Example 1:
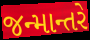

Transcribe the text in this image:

જન્માન્તરે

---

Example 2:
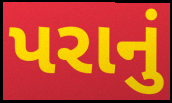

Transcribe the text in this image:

પરાનું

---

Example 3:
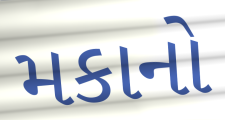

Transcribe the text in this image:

મકાનો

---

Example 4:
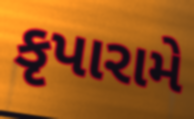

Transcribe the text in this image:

કૃપારામે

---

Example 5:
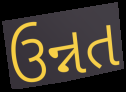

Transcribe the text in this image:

ઉન્નત